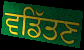
ਵਡਿੱਤਣ